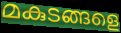
മകുടങ്ങളെ